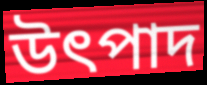
উৎপাদ